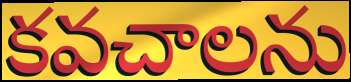
కవచాలను